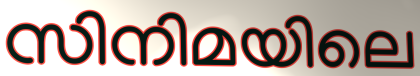
സിനിമയിലെ